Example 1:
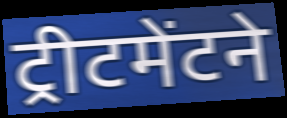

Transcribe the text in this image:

ट्रीटमेंटने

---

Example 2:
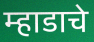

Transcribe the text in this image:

म्हाडाचे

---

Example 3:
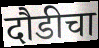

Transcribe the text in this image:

दौडीचा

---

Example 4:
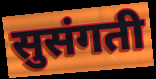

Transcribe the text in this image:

सुसंगती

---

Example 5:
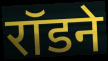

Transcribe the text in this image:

रॉडने